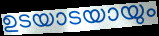
ഉടയാടയായും